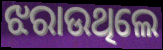
ଝରାଉଥିଲେ